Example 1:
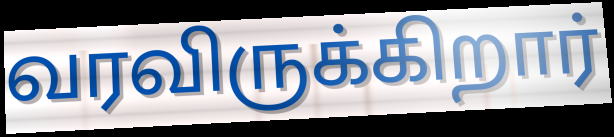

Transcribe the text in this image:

வரவிருக்கிறார்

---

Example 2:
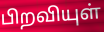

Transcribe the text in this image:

பிறவியுள்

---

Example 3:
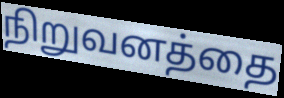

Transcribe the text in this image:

நிறுவனத்தை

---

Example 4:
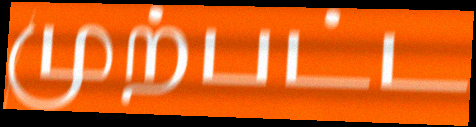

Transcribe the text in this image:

முற்பட்ட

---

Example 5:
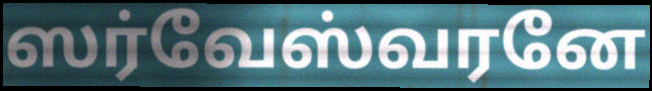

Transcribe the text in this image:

ஸர்வேஸ்வரனே